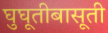
घुघूतीबासूती